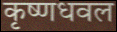
कृष्णधवल